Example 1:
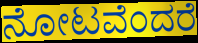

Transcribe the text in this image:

ನೋಟವೆಂದರೆ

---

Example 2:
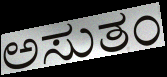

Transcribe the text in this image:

ಅಸುತಂ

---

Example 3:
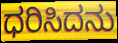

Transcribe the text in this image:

ಧರಿಸಿದನು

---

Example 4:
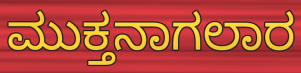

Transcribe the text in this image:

ಮುಕ್ತನಾಗಲಾರ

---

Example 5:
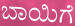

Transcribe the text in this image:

ಬಾಯಿಗೆ